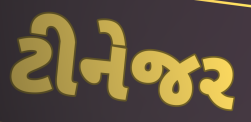
ટીનેજર